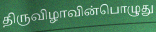
திருவிழாவின்பொழுது